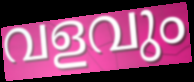
വളവും